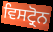
ਵਿਸਟ੍ਰੋਨ